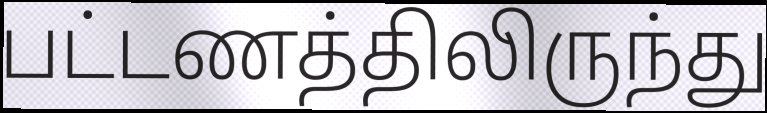
பட்டணத்திலிருந்து